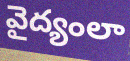
వైద్యంలా